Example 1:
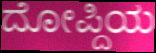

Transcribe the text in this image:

ದೋಪ್ದಿಯ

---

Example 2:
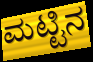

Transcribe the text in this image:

ಮಟ್ಟಿನ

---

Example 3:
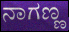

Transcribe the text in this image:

ನಾಗಣ್ಣ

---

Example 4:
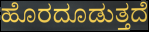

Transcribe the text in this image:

ಹೊರದೂಡುತ್ತದೆ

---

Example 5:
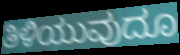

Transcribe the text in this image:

ತಿಳಿಯುವುದೂ